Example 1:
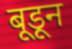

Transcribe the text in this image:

बूडून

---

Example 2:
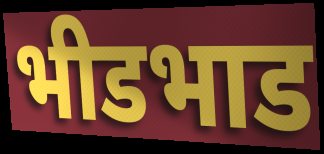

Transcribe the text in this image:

भीडभाड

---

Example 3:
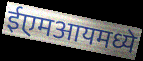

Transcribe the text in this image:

ईएमआयमध्ये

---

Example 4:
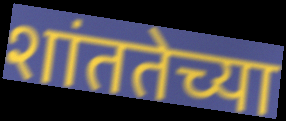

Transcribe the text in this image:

शांततेच्या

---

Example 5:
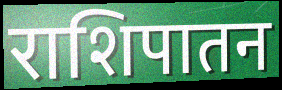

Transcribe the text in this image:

राशिपातन